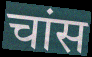
चांस